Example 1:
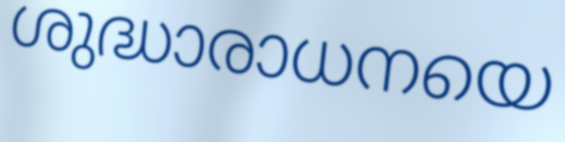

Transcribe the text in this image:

ശുദ്ധാരാധനയെ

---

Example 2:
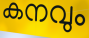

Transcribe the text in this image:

കനവും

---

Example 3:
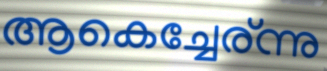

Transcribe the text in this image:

ആകെച്ചേര്ന്നു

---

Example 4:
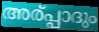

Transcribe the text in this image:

അര്പ്പാദും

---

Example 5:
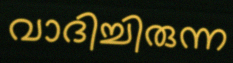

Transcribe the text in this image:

വാദിച്ചിരുന്ന